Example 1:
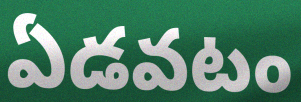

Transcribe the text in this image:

ఏడవటం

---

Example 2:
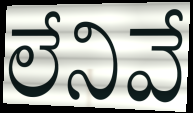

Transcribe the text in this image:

లేనివే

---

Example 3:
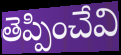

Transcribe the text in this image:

తెప్పించేవి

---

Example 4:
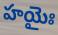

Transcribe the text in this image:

హయైః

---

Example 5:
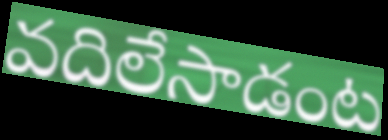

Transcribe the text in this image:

వదిలేసాడంట